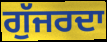
ਗੁੱਜਰਦਾ